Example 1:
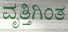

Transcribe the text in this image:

ವೃತ್ತಿಗಿಂತ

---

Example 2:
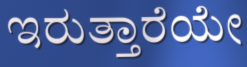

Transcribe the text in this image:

ಇರುತ್ತಾರೆಯೇ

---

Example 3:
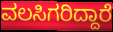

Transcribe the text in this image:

ವಲಸಿಗರಿದ್ದಾರೆ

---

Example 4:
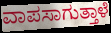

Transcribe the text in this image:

ವಾಪಸಾಗುತ್ತಾಳೆ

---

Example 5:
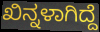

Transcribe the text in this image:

ಖಿನ್ನಳಾಗಿದ್ದೆ